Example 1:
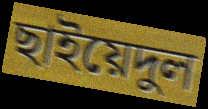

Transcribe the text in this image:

ছাইয়েদুল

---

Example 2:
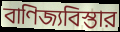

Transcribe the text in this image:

বাণিজ্যবিস্তার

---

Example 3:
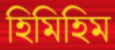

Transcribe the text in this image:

হিমিহিম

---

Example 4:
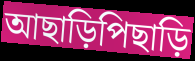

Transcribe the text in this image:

আছাড়িপিছাড়ি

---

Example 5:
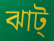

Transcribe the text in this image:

ঝাট্